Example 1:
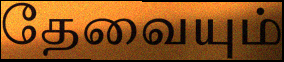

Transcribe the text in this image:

தேவையும்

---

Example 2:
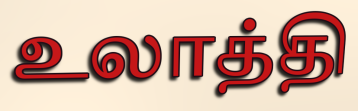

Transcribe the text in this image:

உலாத்தி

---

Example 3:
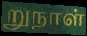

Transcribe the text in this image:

றுநாள்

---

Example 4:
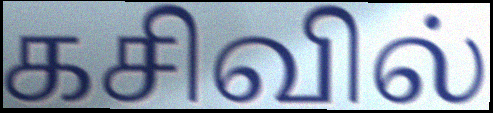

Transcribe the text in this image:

கசிவில்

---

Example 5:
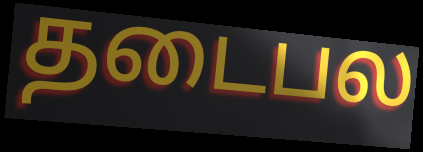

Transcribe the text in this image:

தடைபல